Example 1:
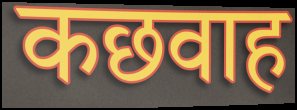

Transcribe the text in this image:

कछवाह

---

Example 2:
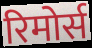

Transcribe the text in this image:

रिमोर्स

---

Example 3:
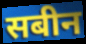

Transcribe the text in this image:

सबीन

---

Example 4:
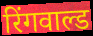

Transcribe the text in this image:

रिंगवाल्ड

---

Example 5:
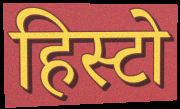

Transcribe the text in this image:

हिस्टो